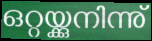
ഒറ്റയ്ക്കുനിന്നു്